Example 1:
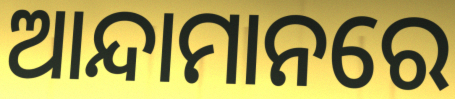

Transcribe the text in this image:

ଆନ୍ଦାମାନରେ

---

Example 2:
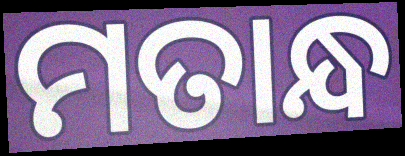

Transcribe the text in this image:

ମତାନ୍ଧ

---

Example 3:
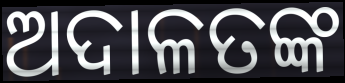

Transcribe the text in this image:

ଅଦାଳତଙ୍କ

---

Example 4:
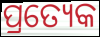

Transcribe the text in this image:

ପ୍ରତ୍ଯେକ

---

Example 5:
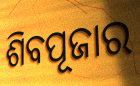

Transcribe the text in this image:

ଶିବପୂଜାର